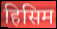
हिसिम